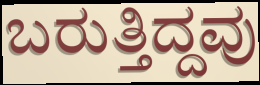
ಬರುತ್ತಿದ್ದವು